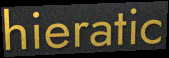
hieratic